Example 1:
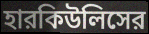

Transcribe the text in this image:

হারকিউলিসের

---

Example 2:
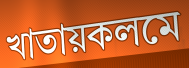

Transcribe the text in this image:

খাতায়কলমে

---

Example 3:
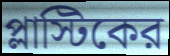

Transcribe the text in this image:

প্লাস্টিকের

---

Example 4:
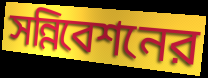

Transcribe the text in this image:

সন্নিবেশনের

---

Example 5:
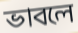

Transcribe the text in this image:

ভাবলে